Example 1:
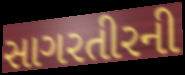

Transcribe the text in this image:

સાગરતીરની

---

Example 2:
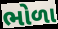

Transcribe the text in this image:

ભોળા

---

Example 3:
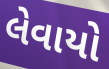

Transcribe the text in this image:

લેવાયો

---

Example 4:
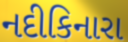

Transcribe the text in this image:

નદીકિનારા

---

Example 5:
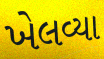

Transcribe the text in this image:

ખેલવ્યા